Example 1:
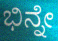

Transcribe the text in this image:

ಭಿನ್ನೇ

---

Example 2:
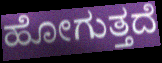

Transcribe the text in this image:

ಹೋಗುತ್ತದೆ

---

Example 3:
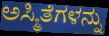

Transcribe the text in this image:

ಅಸ್ಮಿತೆಗಳನ್ನು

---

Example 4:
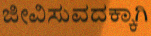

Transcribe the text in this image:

ಜೀವಿಸುವದಕ್ಕಾಗಿ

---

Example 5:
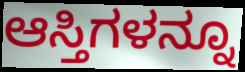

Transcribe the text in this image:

ಆಸ್ತಿಗಳನ್ನೂ